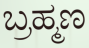
ಬ್ರಹ್ಮಣ